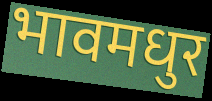
भावमधुर